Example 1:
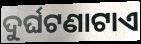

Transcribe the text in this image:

ଦୁର୍ଘଟଣାଟାଏ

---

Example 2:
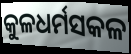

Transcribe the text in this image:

କୁଳଧର୍ମସକଳ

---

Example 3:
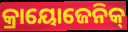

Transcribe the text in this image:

କ୍ରାୟୋଜେନିକ୍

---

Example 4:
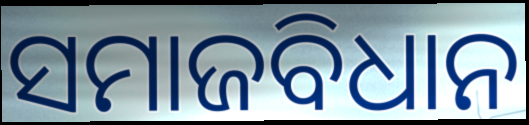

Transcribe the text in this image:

ସମାଜବିଧାନ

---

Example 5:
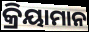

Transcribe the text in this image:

କ୍ରିୟାମାନ